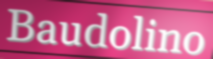
Baudolino